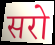
सरो